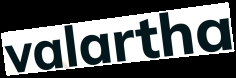
valartha